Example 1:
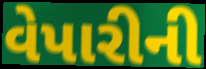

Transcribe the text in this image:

વેપારીની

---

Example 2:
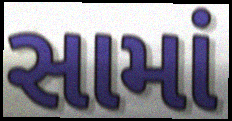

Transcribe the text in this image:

સામાં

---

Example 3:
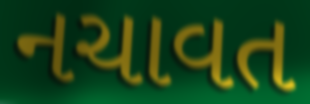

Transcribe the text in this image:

નચાવત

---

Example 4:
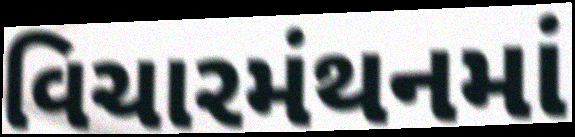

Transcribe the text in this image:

વિચારમંથનમાં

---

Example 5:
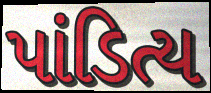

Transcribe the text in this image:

પાંડિત્ય